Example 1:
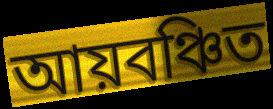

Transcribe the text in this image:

আয়বঞ্চিত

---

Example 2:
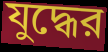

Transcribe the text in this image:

যুদ্ধের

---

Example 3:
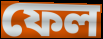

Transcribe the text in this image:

ফেল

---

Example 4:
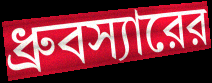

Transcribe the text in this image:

ধ্রুবস্যারের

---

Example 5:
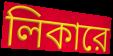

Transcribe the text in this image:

লিকারে